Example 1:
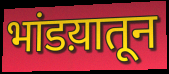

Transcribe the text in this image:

भांडय़ातून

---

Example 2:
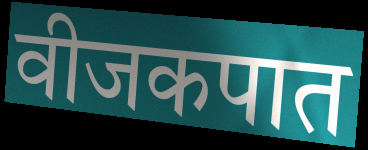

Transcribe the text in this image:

वीजकपात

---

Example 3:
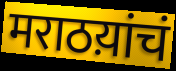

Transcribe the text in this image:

मराठय़ांचं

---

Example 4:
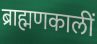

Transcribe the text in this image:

ब्राह्मणकालीं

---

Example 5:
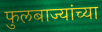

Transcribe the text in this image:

फुलबाज्यांच्या